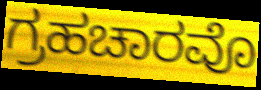
ಗ್ರಹಚಾರವೊ